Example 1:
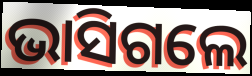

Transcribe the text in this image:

ଭାସିଗଲେ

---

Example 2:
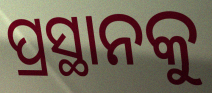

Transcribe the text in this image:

ପ୍ରସ୍ଥାନକୁ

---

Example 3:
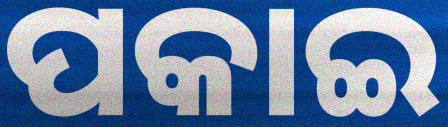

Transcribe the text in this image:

ପକାଇ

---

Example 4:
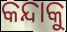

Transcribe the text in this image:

କନ୍ଦାକୁ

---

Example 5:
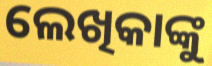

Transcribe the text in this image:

ଲେଖିକାଙ୍କୁ